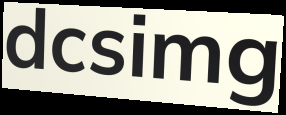
dcsimg